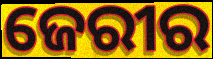
ଜେରୀର